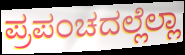
ಪ್ರಪಂಚದಲ್ಲೆಲ್ಲಾ